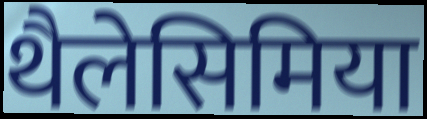
थैलेसिमिया